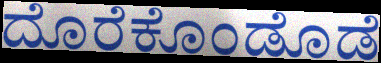
ದೊರೆಕೊಂಡೊಡೆ